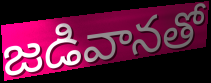
జడివానతో